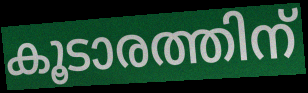
കൂടാരത്തിന്